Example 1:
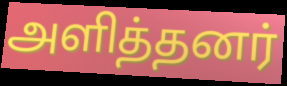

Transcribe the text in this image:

அளித்தனர்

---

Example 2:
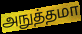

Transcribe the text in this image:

அநுத்தமா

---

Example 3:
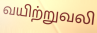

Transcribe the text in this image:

வயிற்றுவலி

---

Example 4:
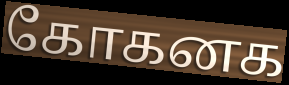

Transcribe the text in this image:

கோகனக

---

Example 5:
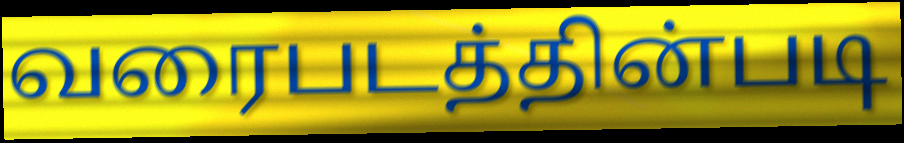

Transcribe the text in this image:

வரைபடத்தின்படி